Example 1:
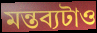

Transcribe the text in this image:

মন্তব্যটাও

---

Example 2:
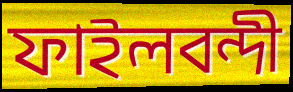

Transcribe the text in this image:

ফাইলবন্দী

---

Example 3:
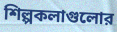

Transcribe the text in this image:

শিল্পকলাগুলোর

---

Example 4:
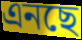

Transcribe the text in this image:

এনছে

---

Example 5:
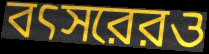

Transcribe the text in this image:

বৎসরেরও